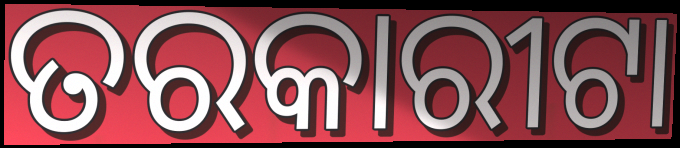
ତରକାରୀଟା